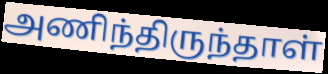
அணிந்திருந்தாள்